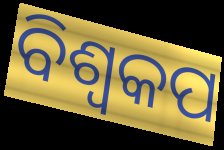
ବିଶ୍ୱକପ